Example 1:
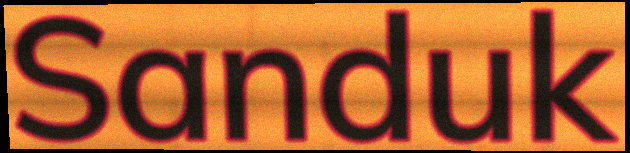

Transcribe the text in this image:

Sanduk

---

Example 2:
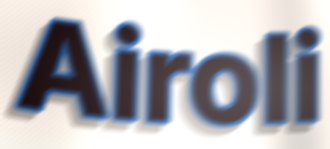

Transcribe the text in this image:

Airoli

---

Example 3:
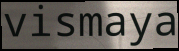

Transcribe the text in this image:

vismaya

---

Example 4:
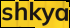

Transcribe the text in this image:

shkya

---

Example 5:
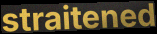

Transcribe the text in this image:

straitened